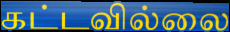
கட்டவில்லை